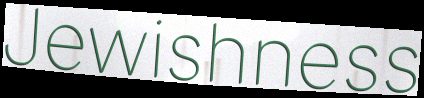
Jewishness